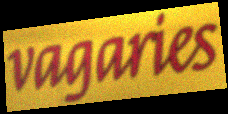
vagaries